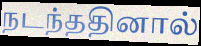
நடந்ததினால்